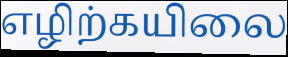
எழிற்கயிலை